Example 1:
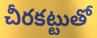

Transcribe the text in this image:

చీరకట్టుతో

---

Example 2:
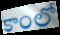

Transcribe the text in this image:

కాంలో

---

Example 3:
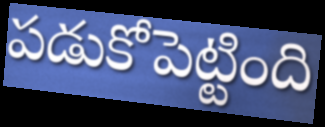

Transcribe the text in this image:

పడుకోపెట్టింది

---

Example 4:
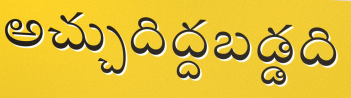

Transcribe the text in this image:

అచ్చుదిద్దబడ్డది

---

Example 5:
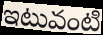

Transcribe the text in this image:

ఇటువంటి